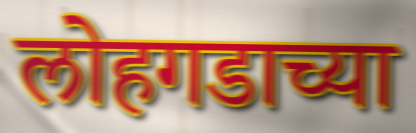
लोहगडाच्या